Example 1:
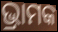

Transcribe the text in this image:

ଭ୍ରାମକ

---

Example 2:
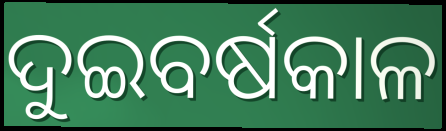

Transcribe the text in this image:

ଦୁଇବର୍ଷକାଳ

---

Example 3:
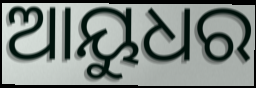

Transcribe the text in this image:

ଆୟୁଧର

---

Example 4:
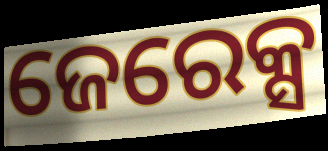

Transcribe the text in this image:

ଜେରେକ୍ସ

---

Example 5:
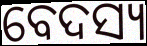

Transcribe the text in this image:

ବେଦସ୍ୟ